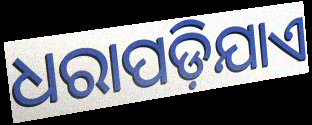
ଧରାପଡ଼ିଯାଏ